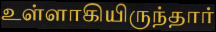
உள்ளாகியிருந்தார்